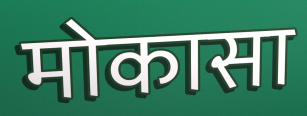
मोकासा